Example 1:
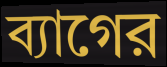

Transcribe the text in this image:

ব্যাগের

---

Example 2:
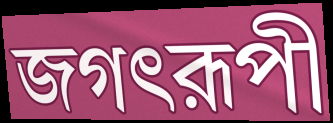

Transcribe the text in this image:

জগৎরূপী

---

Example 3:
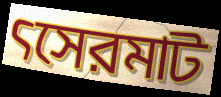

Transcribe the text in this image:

ৎসেরমাট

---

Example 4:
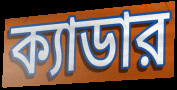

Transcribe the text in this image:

ক্যাডার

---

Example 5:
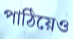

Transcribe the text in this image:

পাঠিয়েও